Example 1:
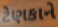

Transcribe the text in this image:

ટેણકાને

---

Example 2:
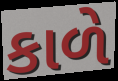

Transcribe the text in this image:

કાળે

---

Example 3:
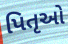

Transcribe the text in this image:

પિતૃઓ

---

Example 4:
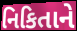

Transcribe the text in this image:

નિકિતાને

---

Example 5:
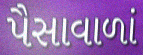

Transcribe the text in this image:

પૈસાવાળાં